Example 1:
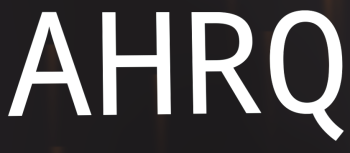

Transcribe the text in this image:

AHRQ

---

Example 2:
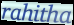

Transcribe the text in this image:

rahitha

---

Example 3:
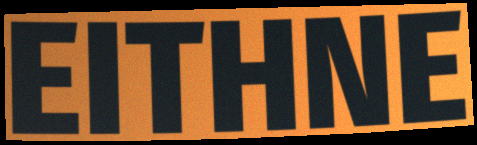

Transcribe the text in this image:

EITHNE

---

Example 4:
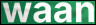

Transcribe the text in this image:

waan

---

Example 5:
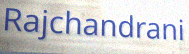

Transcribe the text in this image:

Rajchandrani